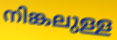
നിങ്കലുള്ള